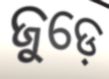
ଜୁଡ଼େ